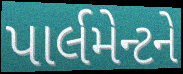
પાર્લમેન્ટને